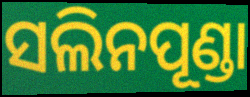
ସଲିନପୂଣ୍ଡା